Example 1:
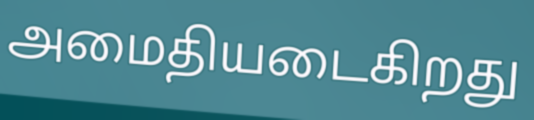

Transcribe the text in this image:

அமைதியடைகிறது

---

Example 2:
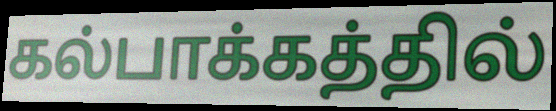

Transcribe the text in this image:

கல்பாக்கத்தில்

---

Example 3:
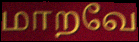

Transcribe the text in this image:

மாறவே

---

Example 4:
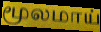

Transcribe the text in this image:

மூலமாய்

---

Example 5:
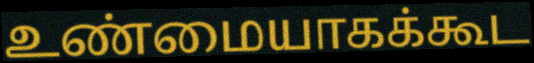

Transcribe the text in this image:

உண்மையாகக்கூட